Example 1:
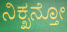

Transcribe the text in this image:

ನಿಕ್ಖನ್ತೋ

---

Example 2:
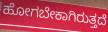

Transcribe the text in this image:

ಹೋಗಬೇಕಾಗಿರುತ್ತದೆ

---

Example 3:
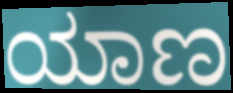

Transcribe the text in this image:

ಯಾಣ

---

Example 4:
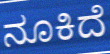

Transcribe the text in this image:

ನೂಕಿದೆ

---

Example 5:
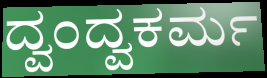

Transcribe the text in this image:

ದ್ವಂದ್ವಕರ್ಮ